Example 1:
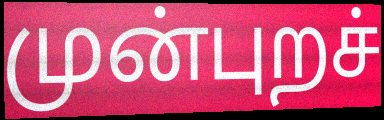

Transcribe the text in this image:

முன்புறச்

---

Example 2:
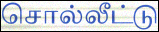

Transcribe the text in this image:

சொல்லீட்டு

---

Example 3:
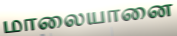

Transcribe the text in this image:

மாலையானை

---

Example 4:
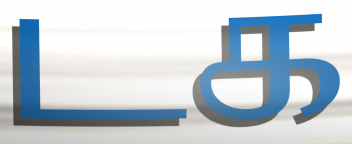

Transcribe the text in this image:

டக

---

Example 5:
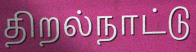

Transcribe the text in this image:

திறல்நாட்டு